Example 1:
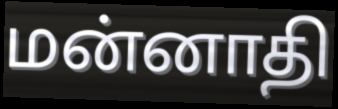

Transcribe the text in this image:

மன்னாதி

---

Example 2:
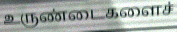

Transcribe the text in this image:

உருண்டைகளைச்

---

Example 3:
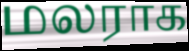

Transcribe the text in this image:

மலராக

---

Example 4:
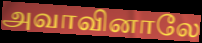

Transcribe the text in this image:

அவாவினாலே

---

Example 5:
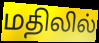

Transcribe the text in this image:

மதிலில்